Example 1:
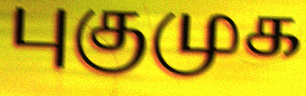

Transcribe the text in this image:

புகுமுக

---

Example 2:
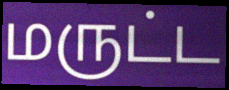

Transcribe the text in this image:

மருட்ட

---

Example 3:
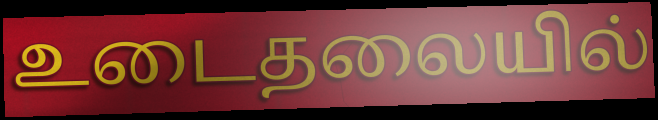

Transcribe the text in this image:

உடைதலையில்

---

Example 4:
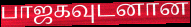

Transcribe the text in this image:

பாஜகவுடனான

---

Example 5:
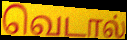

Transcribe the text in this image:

வெடால்